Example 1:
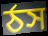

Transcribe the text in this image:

ঠস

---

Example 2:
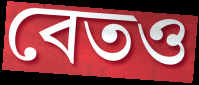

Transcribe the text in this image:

বেতও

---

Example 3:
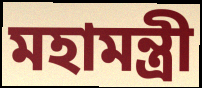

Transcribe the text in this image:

মহামন্ত্রী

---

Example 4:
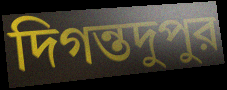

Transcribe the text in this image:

দিগন্তদুপুর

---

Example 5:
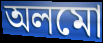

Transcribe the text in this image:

অলমো